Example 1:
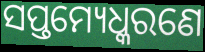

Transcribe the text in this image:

ସପ୍ତମ୍ୟେଧ୍କରଣେ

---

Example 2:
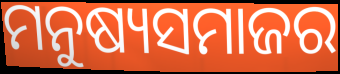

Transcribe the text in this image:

ମନୁଷ୍ୟସମାଜର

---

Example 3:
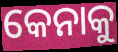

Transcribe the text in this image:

କେନାକୁ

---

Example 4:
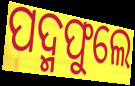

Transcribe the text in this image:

ପଦ୍ମଫୁଲେ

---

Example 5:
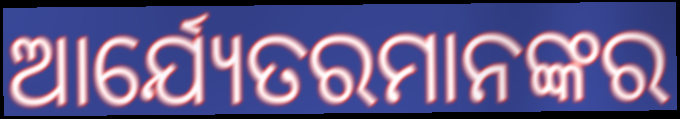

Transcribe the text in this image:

ଆର୍ଯ୍ୟେତରମାନଙ୍କର